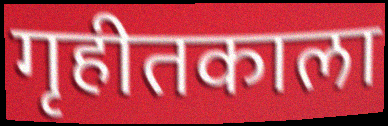
गृहीतकाला